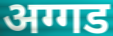
अग्गड